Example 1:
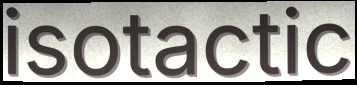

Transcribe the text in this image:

isotactic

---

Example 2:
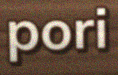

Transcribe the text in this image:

pori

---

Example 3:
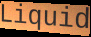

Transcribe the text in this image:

Liquid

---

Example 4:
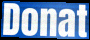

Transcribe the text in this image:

Donat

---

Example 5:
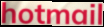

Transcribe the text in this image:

hotmail